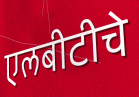
एलबीटीचे